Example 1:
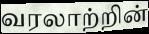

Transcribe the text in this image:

வரலாற்றின்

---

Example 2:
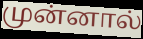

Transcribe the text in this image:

முன்னால்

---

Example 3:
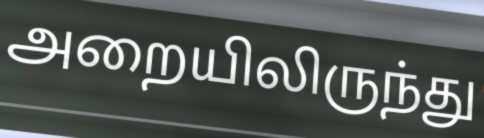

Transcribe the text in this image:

அறையிலிருந்து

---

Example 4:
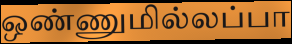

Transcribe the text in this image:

ஒண்ணுமில்லப்பா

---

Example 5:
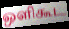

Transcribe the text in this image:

ஒளிகூட